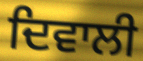
ਦਿਵਾਲੀ